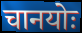
चानयोः